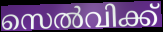
സെൽവിക്ക്